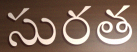
సురత